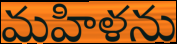
మహిళను